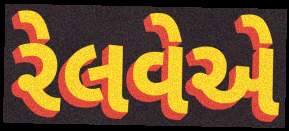
રેલવેએ